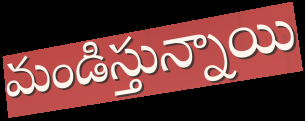
మండిస్తున్నాయి